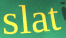
slat